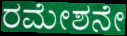
ರಮೇಶನೇ